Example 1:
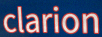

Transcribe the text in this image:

clarion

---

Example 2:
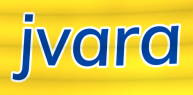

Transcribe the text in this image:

jvara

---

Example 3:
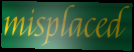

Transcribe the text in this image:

misplaced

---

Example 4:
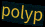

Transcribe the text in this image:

polyp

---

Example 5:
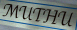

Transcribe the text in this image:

MUTHU